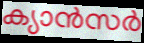
ക്യാൻസർ